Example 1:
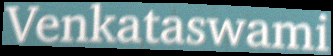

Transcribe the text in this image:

Venkataswami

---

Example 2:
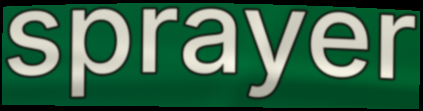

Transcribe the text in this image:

sprayer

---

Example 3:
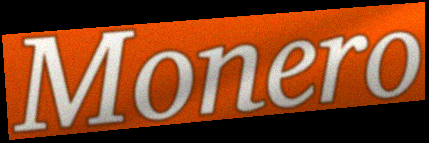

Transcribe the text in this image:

Monero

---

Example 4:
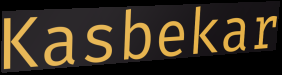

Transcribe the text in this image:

Kasbekar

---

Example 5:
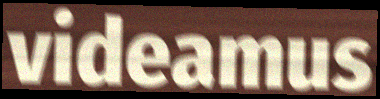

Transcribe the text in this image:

videamus